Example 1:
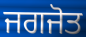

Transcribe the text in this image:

ਜਗਜੋਤ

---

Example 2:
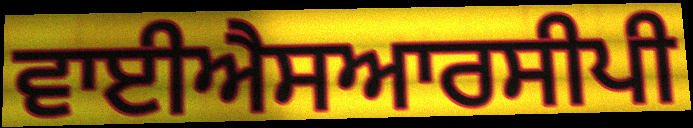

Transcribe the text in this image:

ਵਾਈਐਸਆਰਸੀਪੀ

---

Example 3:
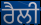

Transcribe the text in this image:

ਰੈਲੀ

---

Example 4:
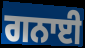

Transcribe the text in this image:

ਗਨਾਈ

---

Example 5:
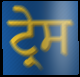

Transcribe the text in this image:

ਟ੍ਰੇਸ